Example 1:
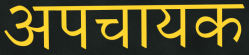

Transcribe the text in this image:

अपचायक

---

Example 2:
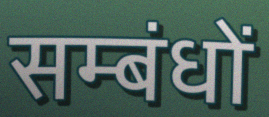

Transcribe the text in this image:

सम्बंधों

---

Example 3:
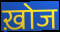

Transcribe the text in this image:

ख़ोज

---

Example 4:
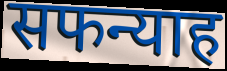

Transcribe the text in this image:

सफन्याह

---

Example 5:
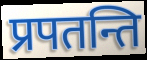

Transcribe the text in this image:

प्रपतन्ति